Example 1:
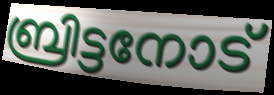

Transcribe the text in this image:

ബ്രിട്ടനോട്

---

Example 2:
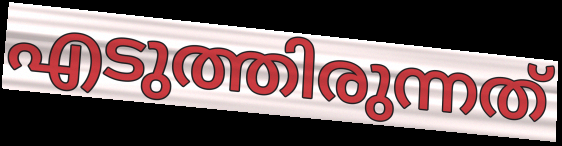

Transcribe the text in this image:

എടുത്തിരുന്നത്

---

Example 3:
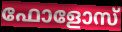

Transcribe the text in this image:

ഫോളോസ്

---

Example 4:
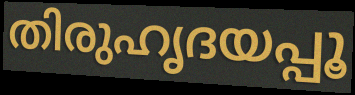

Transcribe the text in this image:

തിരുഹൃദയപ്പൂ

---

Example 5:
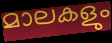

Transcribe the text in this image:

മാലകളും